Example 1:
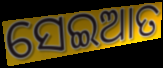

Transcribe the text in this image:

ସେଇଆତ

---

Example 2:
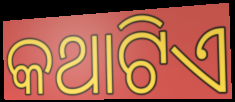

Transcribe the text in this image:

କଥାଟିଏ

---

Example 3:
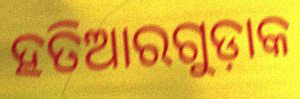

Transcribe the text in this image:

ହତିଆରଗୁଡ଼ାକ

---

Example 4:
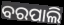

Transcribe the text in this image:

ବରପାଲି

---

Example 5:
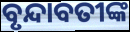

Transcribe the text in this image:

ବୃନ୍ଦାବତୀଙ୍କ